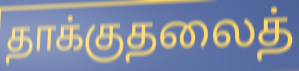
தாக்குதலைத்